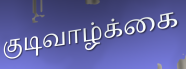
குடிவாழ்க்கை